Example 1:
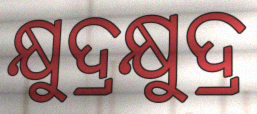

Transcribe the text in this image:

କ୍ଷୁଦ୍ରକ୍ଷୁଦ୍ର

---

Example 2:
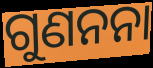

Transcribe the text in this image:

ଗୁଣନନା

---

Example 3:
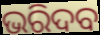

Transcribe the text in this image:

ଭରିଦବ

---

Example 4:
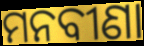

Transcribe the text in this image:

ମନବୀଣା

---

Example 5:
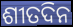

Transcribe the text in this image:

ଶୀତଦିନ